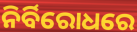
ନିର୍ବିରୋଧରେ